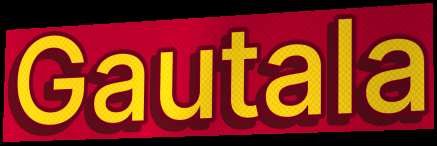
Gautala